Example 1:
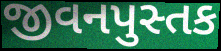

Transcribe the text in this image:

જીવનપુસ્તક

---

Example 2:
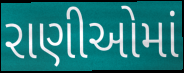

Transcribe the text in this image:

રાણીઓમાં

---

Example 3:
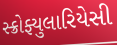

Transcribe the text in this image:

સ્ક્રોફ્યુલારિયેસી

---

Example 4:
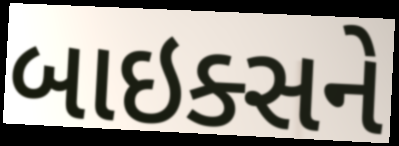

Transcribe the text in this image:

બાઇક્સને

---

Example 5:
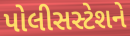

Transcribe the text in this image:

પોલીસસ્ટેશને